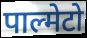
पाल्मेटो